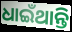
ଧାଇଁଥାନ୍ତି